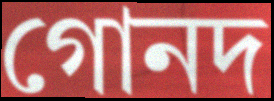
গোনদ